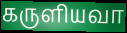
கருளியவா